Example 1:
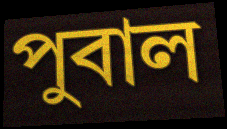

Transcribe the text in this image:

পুবাল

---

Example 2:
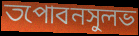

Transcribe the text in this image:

তপোবনসুলভ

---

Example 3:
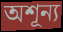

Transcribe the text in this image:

অশূন্য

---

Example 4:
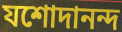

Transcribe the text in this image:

যশোদানন্দ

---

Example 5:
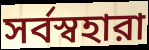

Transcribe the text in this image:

সর্বস্বহারা